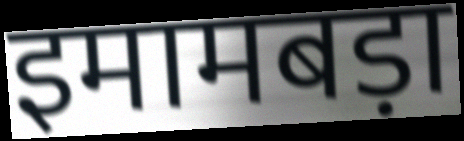
इमामबड़ा